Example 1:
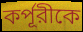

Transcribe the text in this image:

কর্পূরীকে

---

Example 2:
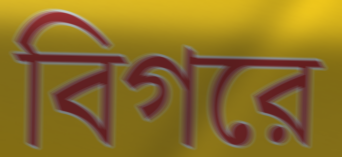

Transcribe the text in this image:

বিগরে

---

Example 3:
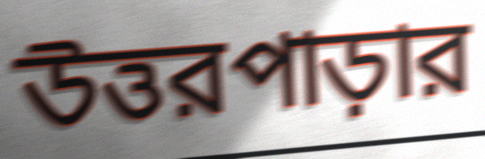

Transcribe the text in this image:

উত্তরপাড়ার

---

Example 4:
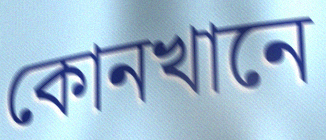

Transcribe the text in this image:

কোনখানে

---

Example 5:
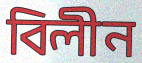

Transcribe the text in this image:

বিলীন